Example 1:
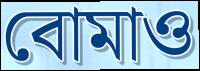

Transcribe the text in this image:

বোমাও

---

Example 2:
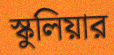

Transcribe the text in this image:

স্কুলিয়ার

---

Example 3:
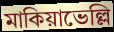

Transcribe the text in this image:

মাকিয়াভেল্লি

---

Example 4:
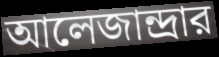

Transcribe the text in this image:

আলেজান্দ্রার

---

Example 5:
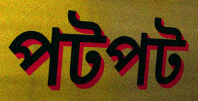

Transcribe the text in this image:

পটপট